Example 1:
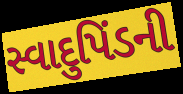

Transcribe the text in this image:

સ્વાદુપિંડની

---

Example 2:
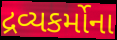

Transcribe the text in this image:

દ્રવ્યકર્મોના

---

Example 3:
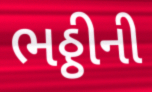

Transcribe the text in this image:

ભઠ્ઠીની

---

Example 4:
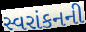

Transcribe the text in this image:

સ્વરાંકનની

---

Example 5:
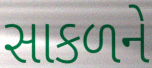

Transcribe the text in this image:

સાકળને